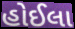
હોઈલા